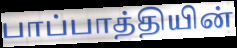
பாப்பாத்தியின்